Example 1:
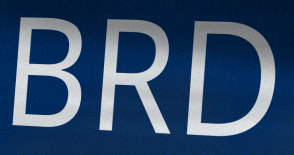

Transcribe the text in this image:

BRD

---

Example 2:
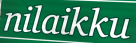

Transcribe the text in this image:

nilaikku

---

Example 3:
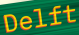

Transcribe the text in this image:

Delft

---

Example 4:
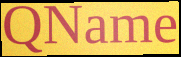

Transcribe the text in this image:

QName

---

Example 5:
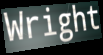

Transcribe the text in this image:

Wright